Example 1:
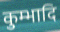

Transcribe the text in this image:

कुम्भादि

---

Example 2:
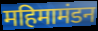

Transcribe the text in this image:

महिमामंडन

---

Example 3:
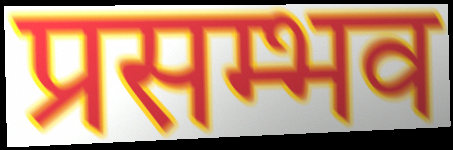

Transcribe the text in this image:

प्रसम्भव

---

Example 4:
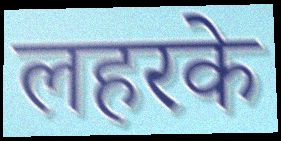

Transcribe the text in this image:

लहरके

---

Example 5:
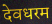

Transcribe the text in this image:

देवधरम